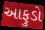
આફુડો